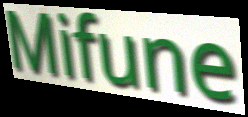
Mifune